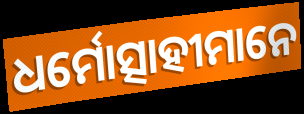
ଧର୍ମୋତ୍ସାହୀମାନେ